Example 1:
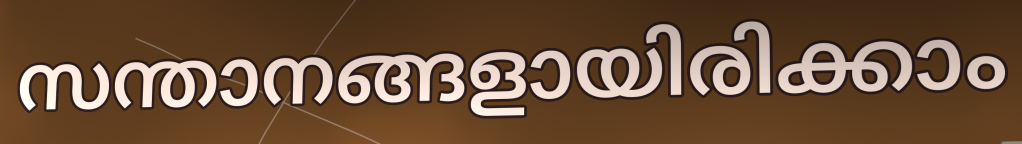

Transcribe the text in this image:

സന്താനങ്ങളായിരിക്കാം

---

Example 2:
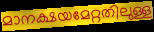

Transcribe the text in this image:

മാനക്ഷയമേറ്റതിലുള്ള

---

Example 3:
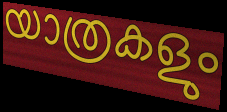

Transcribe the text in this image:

യാത്രകളും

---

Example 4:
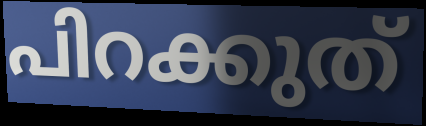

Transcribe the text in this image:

പിറക്കുത്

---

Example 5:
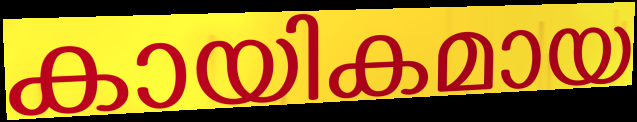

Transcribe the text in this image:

കായികമായ